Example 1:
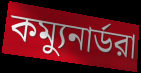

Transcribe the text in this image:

কম্যুনার্ডরা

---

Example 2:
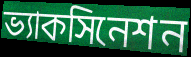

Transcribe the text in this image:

ভ্যাকসিনেশন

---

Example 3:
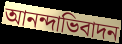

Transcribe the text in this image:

আনন্দাভিবাদন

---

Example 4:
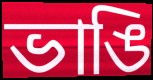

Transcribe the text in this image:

ভাঙি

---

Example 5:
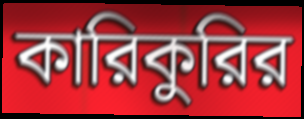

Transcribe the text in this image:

কারিকুরির